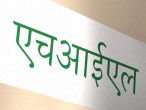
एचआईएल